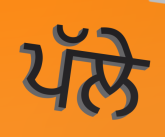
ਪੱਲੇ